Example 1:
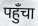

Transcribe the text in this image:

पहुँचा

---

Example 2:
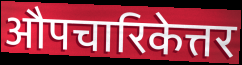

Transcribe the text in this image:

औपचारिकेत्तर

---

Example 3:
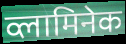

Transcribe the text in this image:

व्लामिनेक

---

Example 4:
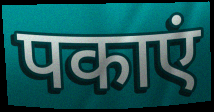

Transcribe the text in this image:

पकाएं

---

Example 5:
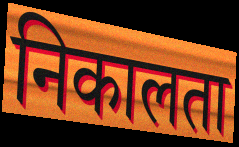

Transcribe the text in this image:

निकालता